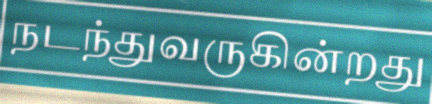
நடந்துவருகின்றது